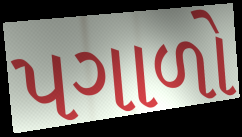
પગાળો